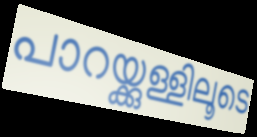
പാറയ്ക്കുള്ളിലൂടെ